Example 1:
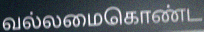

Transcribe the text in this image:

வல்லமைகொண்ட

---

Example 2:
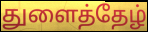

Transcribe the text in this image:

துளைத்தேழ்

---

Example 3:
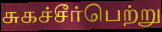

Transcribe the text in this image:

சுகச்சீர்பெற்று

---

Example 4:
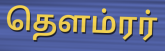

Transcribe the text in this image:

தௌம்ரர்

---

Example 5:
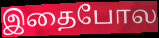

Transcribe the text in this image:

இதைபோல